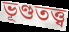
ভূণ্ডতত্ত্ব